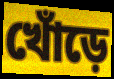
খোঁড়ে